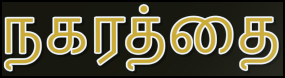
நகரத்தை